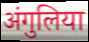
अंगुलिया